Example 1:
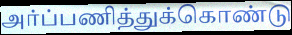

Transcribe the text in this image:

அர்ப்பணித்துக்கொண்டு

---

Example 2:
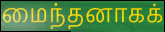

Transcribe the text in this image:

மைந்தனாகக்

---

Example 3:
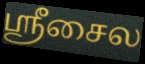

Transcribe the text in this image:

ஸ்ரீசைல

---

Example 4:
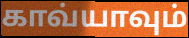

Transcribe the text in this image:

காவ்யாவும்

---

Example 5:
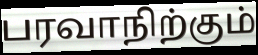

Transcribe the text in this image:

பரவாநிற்கும்